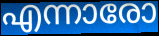
എന്നാരോ